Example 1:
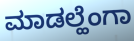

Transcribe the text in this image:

ಮಾಡಲ್ಹೆಂಗಾ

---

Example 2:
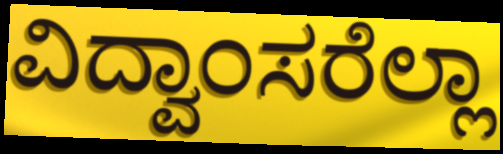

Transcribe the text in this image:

ವಿದ್ವಾಂಸರೆಲ್ಲಾ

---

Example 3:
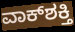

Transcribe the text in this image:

ವಾಕ್‌ಶಕ್ತಿ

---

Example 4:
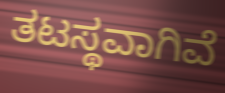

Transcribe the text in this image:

ತಟಸ್ಥವಾಗಿವೆ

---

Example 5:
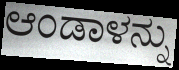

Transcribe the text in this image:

ಆಂಡಾಳನ್ನು